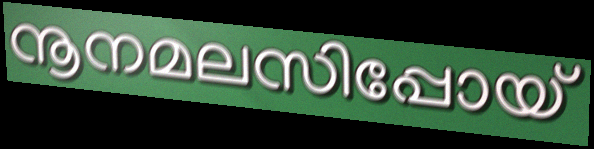
നൂനമലസിപ്പോയ്